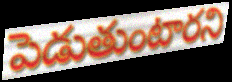
పెడుతుంటారని